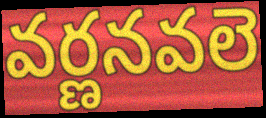
వర్ణనవలె